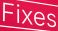
Fixes